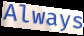
Always